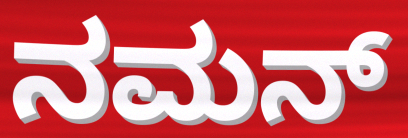
ನಮನ್